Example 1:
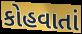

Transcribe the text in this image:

કોહવાતાં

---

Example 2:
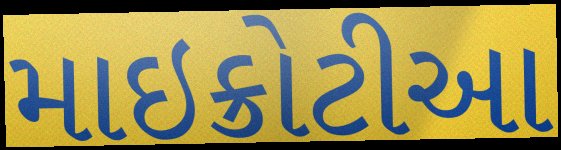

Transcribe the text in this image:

માઇક્રોટીઆ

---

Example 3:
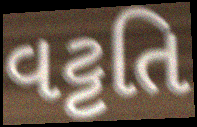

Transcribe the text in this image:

વટ્ટતિ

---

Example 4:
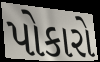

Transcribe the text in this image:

પોકારો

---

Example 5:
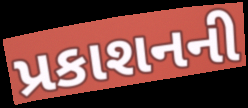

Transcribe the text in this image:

પ્રકાશનની